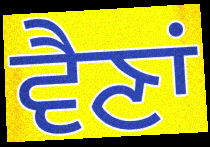
ਵੈਣਾਂ